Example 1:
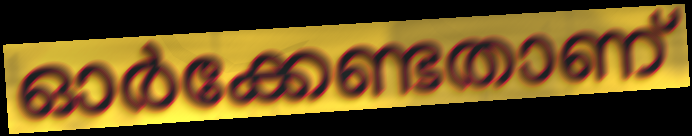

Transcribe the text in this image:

ഓർക്കേണ്ടതാണ്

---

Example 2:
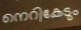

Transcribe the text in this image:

നെറികേടും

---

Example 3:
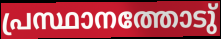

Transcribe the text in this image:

പ്രസ്ഥാനത്തോടു്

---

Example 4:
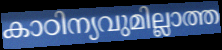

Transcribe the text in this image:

കാഠിന്യവുമില്ലാത്ത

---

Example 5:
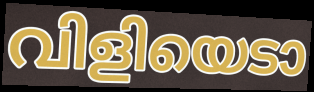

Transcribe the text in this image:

വിളിയെടാ